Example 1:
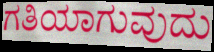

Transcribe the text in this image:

ಗತಿಯಾಗುವುದು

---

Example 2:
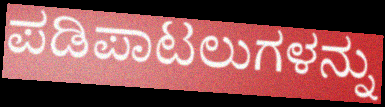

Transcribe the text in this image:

ಪಡಿಪಾಟಲುಗಳನ್ನು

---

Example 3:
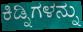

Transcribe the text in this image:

ಕಿಡ್ನಿಗಳನ್ನು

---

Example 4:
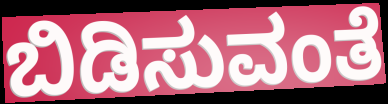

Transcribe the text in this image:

ಬಿಡಿಸುವಂತೆ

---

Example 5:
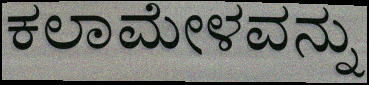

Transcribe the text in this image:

ಕಲಾಮೇಳವನ್ನು